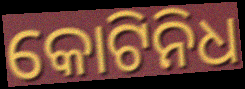
କୋଟିନିଧ